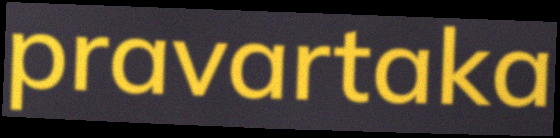
pravartaka